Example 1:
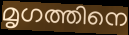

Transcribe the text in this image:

മൃഗത്തിനെ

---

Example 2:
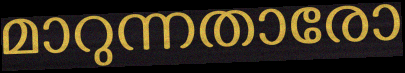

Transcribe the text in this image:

മാറുന്നതാരോ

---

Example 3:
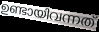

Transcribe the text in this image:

ഉണ്ടായിവന്നത്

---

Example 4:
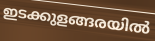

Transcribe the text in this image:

ഇടക്കുളങ്ങരയിൽ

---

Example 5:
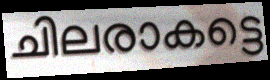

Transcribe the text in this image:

ചിലരാകട്ടെ